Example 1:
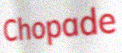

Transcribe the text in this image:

Chopade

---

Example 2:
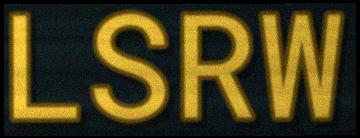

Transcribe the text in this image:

LSRW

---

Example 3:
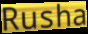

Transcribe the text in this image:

Rusha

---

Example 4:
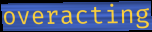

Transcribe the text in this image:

overacting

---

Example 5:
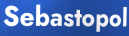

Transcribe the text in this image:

Sebastopol